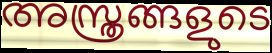
അസ്ത്രങ്ങളുടെ